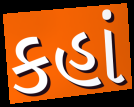
કહાં